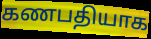
கணபதியாக